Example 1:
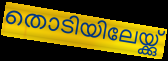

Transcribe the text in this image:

തൊടിയിലേയ്ക്കു്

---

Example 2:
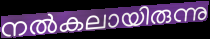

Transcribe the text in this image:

നൽകലായിരുന്നു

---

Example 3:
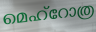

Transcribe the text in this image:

മെഹ്റോത്ര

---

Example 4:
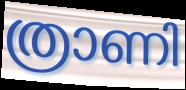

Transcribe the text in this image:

ത്രാണി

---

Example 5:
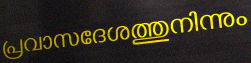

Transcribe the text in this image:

പ്രവാസദേശത്തുനിന്നും